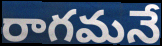
రాగమనే